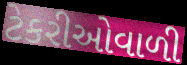
ટેકરીઓવાળી